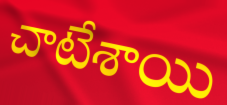
చాటేశాయి